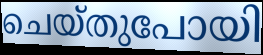
ചെയ്തുപോയി